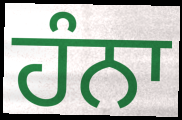
ਹੰਨਾ